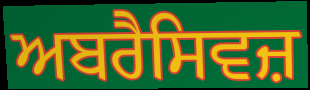
ਅਬਰੈਸਿਵਜ਼